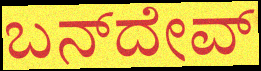
ಬನ್‌ದೇವ್